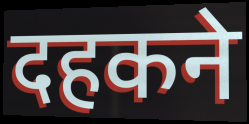
दहकने